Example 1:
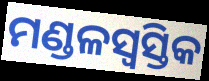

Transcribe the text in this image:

ମଣ୍ଡଳସ୍ୱସ୍ତିକ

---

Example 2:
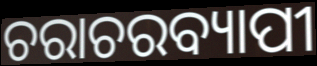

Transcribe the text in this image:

ଚରାଚରବ୍ୟାପୀ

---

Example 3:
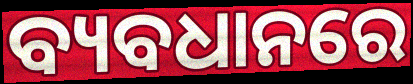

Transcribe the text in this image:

ବ୍ୟବଧାନରେ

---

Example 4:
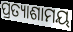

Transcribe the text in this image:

ପ୍ରତ୍ୟାଶାମୟ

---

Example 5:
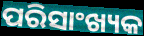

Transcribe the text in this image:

ପରିସାଂଖ୍ୟକ